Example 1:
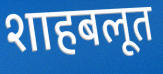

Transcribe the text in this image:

शाहबलूत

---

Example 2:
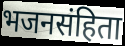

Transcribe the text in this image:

भजनसंहिता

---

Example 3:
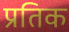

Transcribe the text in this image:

प्रतिक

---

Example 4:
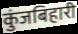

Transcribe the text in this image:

कुंजबिहारी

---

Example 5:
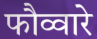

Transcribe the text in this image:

फौव्वारे